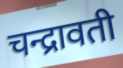
चन्द्रावती